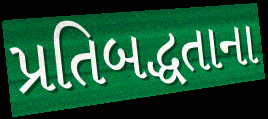
પ્રતિબદ્ધતાના